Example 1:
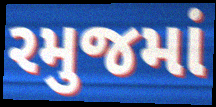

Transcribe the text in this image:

રમુજમાં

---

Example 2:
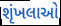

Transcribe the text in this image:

શૃંખલાઓ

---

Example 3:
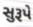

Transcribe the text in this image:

સુરૂપે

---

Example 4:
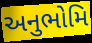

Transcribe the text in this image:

અનુભોમિ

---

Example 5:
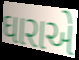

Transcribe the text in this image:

ઘારાએ